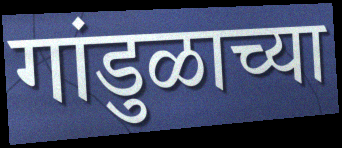
गांडुळाच्या